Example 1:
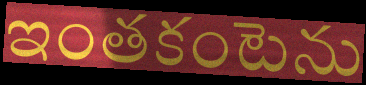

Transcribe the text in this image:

ఇంతకంటెను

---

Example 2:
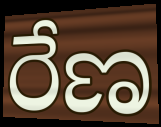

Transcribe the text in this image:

రేణ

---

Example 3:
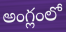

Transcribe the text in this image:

అంగ్లంలో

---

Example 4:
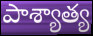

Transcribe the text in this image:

పాశ్యాత్య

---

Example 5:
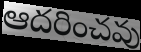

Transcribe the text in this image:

ఆదరించవు